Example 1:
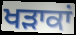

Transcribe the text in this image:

ਖੜਾਕਾਂ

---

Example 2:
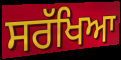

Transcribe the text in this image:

ਸਰੱਖਿਆ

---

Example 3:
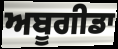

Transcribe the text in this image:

ਅਬੂਗੀਡਾ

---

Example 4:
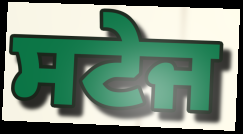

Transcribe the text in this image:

ਸਟੇਜ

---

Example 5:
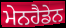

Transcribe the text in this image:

ਮੇਨਹੈਡੇਨ